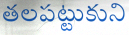
తలపట్టుకుని